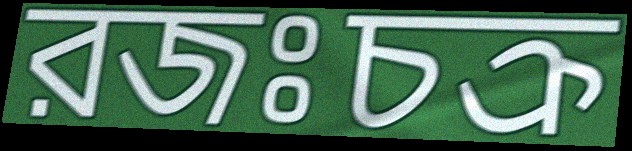
রজঃচক্র